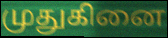
முதுகினை